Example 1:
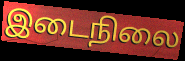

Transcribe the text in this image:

இடைநிலை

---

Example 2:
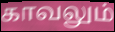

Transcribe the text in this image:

காவலும்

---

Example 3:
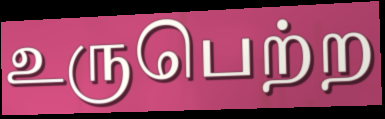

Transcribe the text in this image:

உருபெற்ற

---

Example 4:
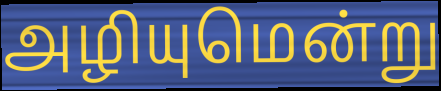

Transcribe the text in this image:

அழியுமென்று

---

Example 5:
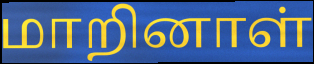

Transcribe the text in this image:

மாறினாள்